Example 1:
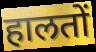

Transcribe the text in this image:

हालतों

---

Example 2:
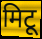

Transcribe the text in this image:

मिटू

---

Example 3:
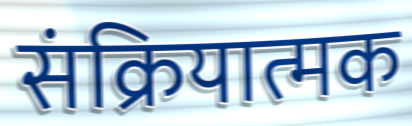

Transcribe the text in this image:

संक्रियात्मक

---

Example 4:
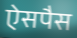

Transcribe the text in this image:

ऐसपैस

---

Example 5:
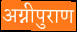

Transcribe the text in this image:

अग्नीपुराण